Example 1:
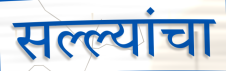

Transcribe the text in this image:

सल्ल्यांचा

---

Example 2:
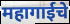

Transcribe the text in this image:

महागाईचे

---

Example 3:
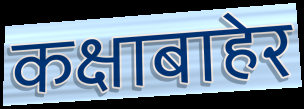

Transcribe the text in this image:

कक्षाबाहेर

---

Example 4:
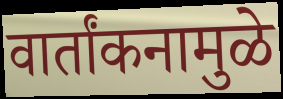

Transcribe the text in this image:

वार्तांकनामुळे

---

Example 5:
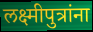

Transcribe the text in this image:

लक्ष्मीपुत्रांना